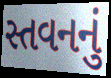
સ્તવનનું